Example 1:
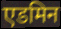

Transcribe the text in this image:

एडमिन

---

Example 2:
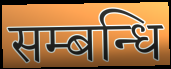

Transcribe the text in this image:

सम्बन्धि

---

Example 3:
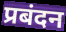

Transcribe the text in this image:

प्रबंदन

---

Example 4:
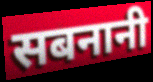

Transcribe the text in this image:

सबनानी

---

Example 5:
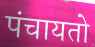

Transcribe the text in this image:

पंचायतो